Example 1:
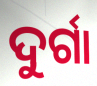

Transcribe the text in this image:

ଦୁର୍ଗା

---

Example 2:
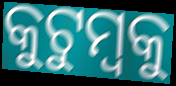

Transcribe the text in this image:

କୁଟୁମ୍ବକୁ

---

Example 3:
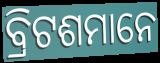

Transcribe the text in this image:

ବ୍ରିଟଶମାନେ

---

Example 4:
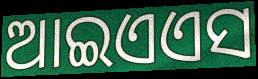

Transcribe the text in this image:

ଆଇଏଏସ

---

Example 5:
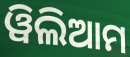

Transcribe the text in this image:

ୱିଲିଆମ